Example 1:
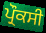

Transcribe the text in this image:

ਪ੍ਰੌਕਸੀ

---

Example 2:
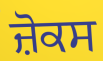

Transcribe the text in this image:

ਜ਼ੋਕਸ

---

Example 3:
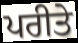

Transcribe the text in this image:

ਪਰੀਤੇ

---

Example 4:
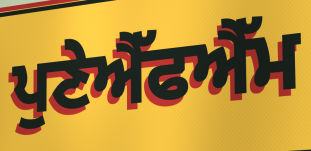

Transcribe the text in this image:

ਪੁਣੇਐੱਫਐੱਮ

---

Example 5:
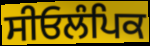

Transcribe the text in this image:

ਸੀਓਲੰਪਿਕ